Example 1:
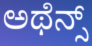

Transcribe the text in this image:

ಅಥೆನ್ಸ್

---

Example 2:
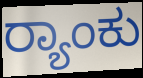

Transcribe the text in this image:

ರ್‍ಯಾಂಕು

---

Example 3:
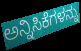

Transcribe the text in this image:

ಅನ್ನಿಸಿಕೆಗಳನ್ನು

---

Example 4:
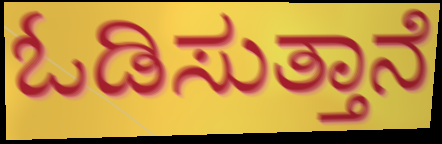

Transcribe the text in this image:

ಓಡಿಸುತ್ತಾನೆ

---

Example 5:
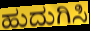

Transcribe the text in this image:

ಹುದುಗಿಸಿ